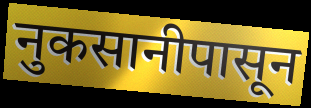
नुकसानीपासून